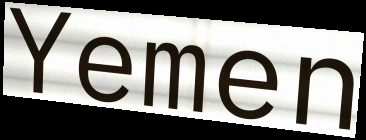
Yemen